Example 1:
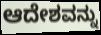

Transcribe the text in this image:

ಆದೇಶವನ್ನು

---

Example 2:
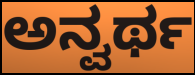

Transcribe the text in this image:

ಅನ್ವರ್ಥ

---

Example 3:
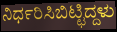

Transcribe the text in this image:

ನಿರ್ಧರಿಸಿಬಿಟ್ಟಿದ್ದಳು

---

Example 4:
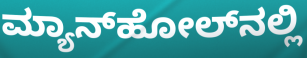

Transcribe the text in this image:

ಮ್ಯಾನ್‌ಹೋಲ್‌ನಲ್ಲಿ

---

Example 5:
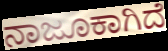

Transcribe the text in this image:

ನಾಜೂಕಾಗಿದೆ